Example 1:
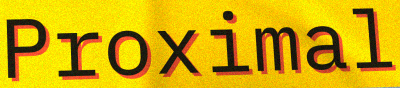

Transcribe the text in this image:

Proximal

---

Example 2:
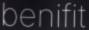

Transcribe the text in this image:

benifit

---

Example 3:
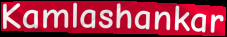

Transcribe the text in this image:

Kamlashankar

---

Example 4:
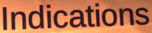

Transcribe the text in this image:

Indications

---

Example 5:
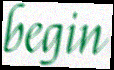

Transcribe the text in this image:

begin